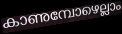
കാണുമ്പോഴെല്ലാം